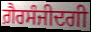
ਗ਼ੈਰਸੰਜੀਦਗੀ